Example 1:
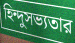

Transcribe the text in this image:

হিন্দুসভ্যতার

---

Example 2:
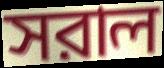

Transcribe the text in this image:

সরাল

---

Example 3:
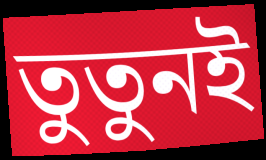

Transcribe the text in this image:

তুতুনই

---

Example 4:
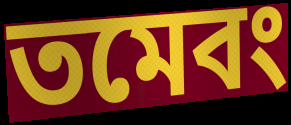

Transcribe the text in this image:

তমেবং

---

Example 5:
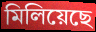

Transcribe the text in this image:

মিলিয়েছে